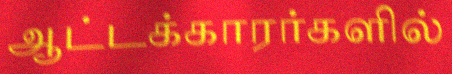
ஆட்டக்காரர்களில்